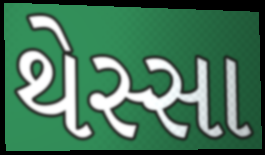
થેસ્સા